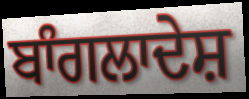
ਬਾੰਗਲਾਦੇਸ਼